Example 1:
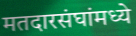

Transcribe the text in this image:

मतदारसंघांमध्ये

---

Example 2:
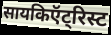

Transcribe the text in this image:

सायकिऍट्रिस्ट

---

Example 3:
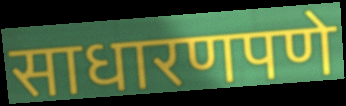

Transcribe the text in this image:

साधारणपणे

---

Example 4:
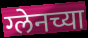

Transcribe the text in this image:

ग्लेनच्या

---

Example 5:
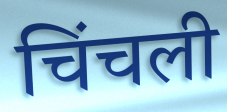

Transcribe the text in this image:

चिंचली